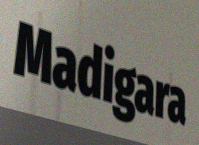
Madigara